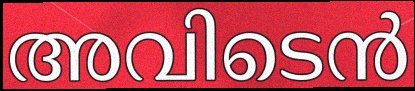
അവിടെൻ